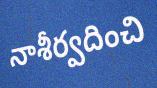
నాశీర్వదించి